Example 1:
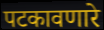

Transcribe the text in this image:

पटकावणारे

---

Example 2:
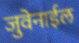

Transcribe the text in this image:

जुवेनाईल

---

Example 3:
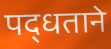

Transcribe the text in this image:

पद्धताने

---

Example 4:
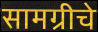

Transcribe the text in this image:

सामग्रीचे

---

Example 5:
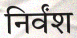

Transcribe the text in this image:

निर्वंश